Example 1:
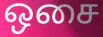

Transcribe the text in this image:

ஒசை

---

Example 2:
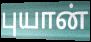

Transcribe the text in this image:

புயான்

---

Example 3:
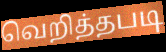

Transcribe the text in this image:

வெறித்தபடி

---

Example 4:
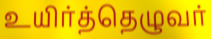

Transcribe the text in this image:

உயிர்த்தெழுவர்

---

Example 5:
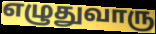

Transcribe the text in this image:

எழுதுவாரு